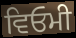
ਵਿਓਮੀ